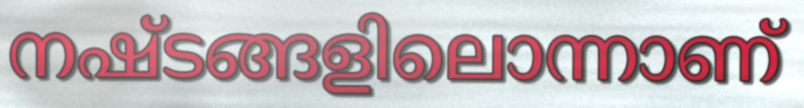
നഷ്ടങ്ങളിലൊന്നാണ്